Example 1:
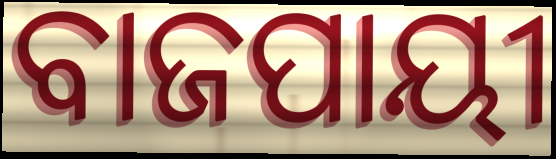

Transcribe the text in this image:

ବାଜପାୟୀ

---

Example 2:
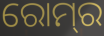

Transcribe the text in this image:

ରୋମ୍‌ର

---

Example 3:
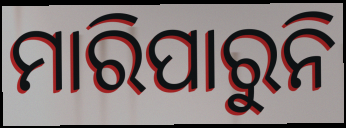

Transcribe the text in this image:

ମାରିପାରୁନି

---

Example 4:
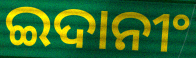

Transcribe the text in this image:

ଇଦାନୀଂ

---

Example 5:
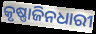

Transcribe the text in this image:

କୃଷ୍ଣାଜିନଧାରୀ